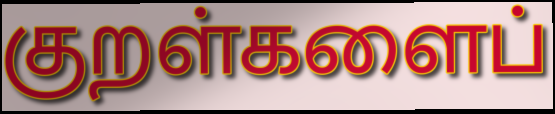
குறள்களைப்